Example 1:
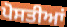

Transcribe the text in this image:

ਪੋਸਤੀਆਂ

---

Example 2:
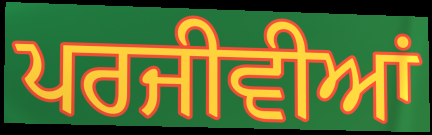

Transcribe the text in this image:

ਪਰਜੀਵੀਆਂ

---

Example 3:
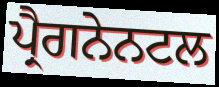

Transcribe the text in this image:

ਪ੍ਰੈਗਨੇਨਟਲ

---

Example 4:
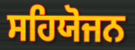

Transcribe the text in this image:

ਸਹਿਯੋਜਨ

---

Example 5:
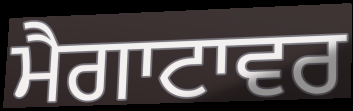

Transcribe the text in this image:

ਮੈਗਾਟਾਵਰ